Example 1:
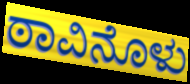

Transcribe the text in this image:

ಠಾವಿನೊಳು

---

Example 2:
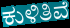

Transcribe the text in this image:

ಕುಳಿತಿವೆ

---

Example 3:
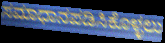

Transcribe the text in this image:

ಸಮಾಧಾನಪಡಿಸಿಕೊಳ್ಳಲು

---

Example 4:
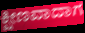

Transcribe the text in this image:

ಕ್ಷೀಣವಾದಾಗ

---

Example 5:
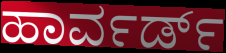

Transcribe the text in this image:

ಹಾರ್ವರ್ಡ್